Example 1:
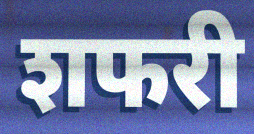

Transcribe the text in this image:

शफरी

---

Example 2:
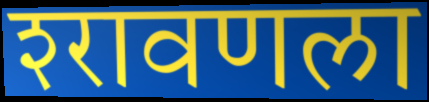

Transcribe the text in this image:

श्रावणला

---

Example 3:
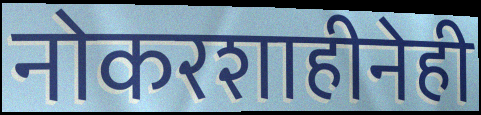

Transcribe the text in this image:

नोकरशाहीनेही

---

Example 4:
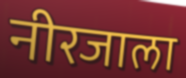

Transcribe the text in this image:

नीरजाला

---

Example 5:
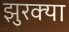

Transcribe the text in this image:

झुरक्या